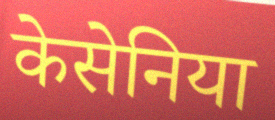
केसेनिया